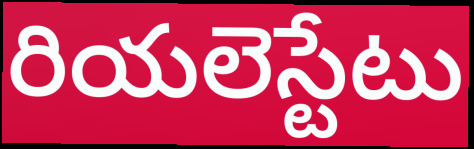
రియలెస్టేటు